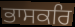
ਭਾਸਕਰਿ